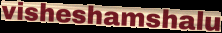
visheshamshalu